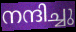
നന്ദിച്ചു